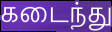
கடைந்து